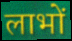
लाभों